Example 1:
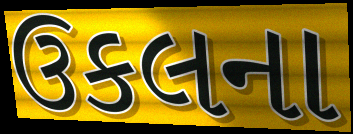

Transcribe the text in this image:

ઉકલના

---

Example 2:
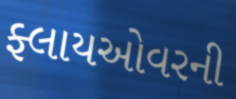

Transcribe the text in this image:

ફ્લાયઓવરની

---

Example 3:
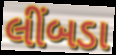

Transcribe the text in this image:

લીંબડા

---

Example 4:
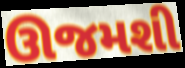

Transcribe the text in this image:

ઊજમશી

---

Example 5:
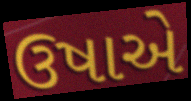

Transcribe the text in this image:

ઉષાએ